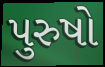
પુરુષો